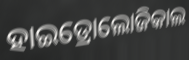
ହାଇଡ୍ରୋଲୋଜିକାଲ